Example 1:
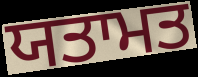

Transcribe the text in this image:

ਯਤਾਮਤ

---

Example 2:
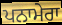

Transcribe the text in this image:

ਪਨਾਮੇਰਾ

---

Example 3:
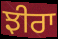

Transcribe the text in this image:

ਝੀਰਾ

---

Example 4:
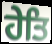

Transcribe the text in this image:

ਹੇਤਿ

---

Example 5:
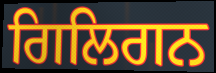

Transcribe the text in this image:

ਗਿਲਿਗਨ